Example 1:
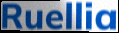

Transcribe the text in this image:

Ruellia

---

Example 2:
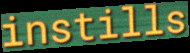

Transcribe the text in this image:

instills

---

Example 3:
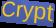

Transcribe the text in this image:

Crypt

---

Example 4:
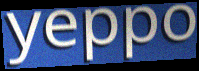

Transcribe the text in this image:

yeppo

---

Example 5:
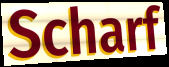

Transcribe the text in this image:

Scharf